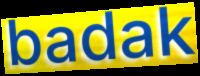
badak